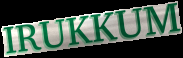
IRUKKUM